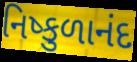
નિષ્કુળાનંદ